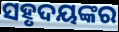
ସହୃଦୟଙ୍କର